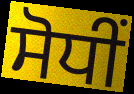
ਸੋਧੀਂ